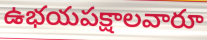
ఉభయపక్షాలవారూ